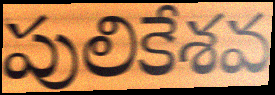
పులికేశవ